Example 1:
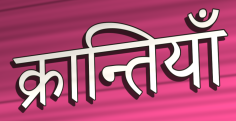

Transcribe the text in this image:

क्रान्तियाँ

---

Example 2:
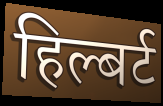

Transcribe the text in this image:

हिल्बर्ट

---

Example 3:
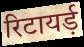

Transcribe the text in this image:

रिटायर्ड़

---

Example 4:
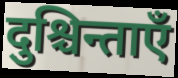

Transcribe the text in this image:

दुश्चिन्ताएँ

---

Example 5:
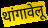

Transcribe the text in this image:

थांगावेलू